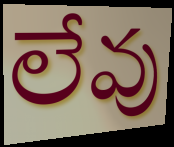
లేవు